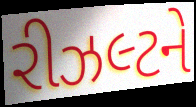
રીઝલ્ટને